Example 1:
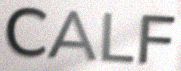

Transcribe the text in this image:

CALF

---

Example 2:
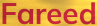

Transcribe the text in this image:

Fareed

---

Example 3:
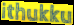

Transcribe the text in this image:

ithukku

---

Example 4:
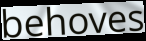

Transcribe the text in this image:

behoves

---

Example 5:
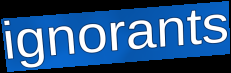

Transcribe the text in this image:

ignorants